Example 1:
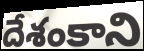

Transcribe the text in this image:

దేశంకాని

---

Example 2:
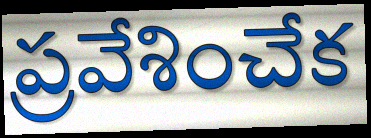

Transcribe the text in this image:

ప్రవేశించేక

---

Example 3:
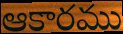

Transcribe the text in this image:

ఆకారము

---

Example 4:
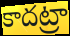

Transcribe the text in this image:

కాదట్రా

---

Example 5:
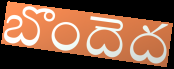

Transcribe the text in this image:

బొందెద